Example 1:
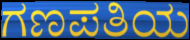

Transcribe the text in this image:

ಗಣಪತಿಯ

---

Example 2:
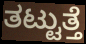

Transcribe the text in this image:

ತಟ್ಟುತ್ತೆ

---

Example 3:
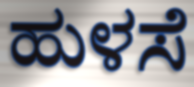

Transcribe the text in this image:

ಹುಳಸೆ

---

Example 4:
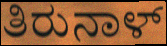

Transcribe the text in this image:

ತಿರುನಾಳ್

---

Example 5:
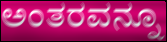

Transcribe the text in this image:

ಅಂತರವನ್ನೂ